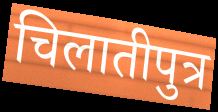
चिलातीपुत्र